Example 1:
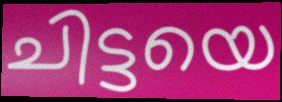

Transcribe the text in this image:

ചിട്ടയെ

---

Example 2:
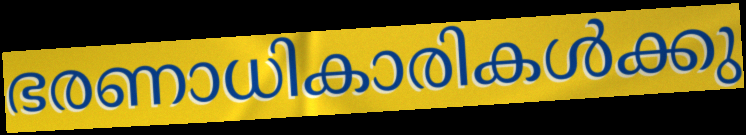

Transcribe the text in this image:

ഭരണാധികാരികൾക്കു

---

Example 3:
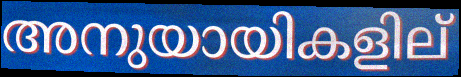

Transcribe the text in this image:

അനുയായികളില്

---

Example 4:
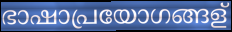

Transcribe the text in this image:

ഭാഷാപ്രയോഗങ്ങള്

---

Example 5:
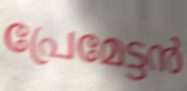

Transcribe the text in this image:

പ്രേമേട്ടൻ